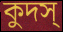
কুদস্